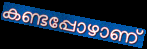
കണ്ടപ്പോഴാണ്